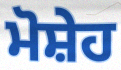
ਮੋਸ਼ੇਹ